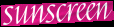
sunscreen